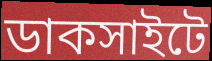
ডাকসাইটে